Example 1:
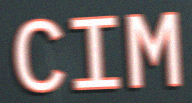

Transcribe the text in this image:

CIM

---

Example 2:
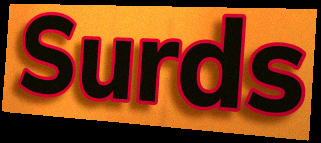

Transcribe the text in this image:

Surds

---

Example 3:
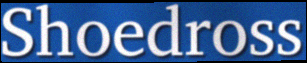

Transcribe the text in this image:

Shoedross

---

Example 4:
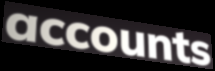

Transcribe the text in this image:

accounts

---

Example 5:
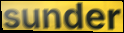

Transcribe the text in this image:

sunder